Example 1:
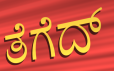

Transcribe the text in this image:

ತೆಗೆದ್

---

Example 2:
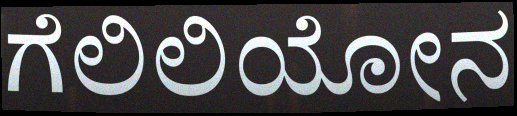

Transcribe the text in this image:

ಗೆಲಿಲಿಯೋನ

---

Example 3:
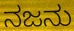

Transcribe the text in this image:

ನಜನು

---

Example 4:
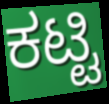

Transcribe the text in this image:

ಕಟ್ಟಿ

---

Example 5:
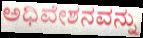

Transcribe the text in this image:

ಅಧಿವೇಶನವನ್ನು